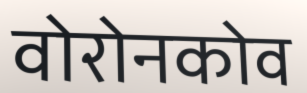
वोरोनकोव